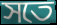
সতে